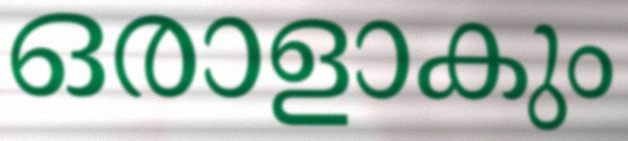
ഒരാളാകും